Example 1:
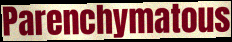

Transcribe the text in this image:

Parenchymatous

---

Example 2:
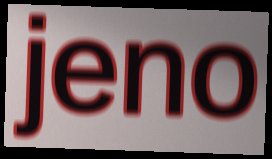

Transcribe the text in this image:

jeno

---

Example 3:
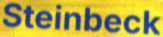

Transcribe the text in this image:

Steinbeck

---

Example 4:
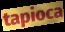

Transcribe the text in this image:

tapioca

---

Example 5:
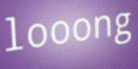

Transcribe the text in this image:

looong